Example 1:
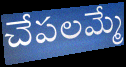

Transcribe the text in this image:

చేపలమ్మే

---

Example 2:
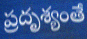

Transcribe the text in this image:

ప్రదృశ్యంతే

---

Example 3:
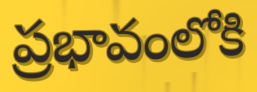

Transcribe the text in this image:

ప్రభావంలోకి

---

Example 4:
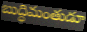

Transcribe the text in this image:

బుద్ధిమంతుడూ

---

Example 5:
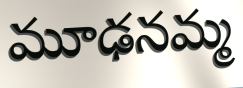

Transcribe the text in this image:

మూఢనమ్మ